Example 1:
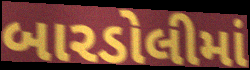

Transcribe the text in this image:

બારડોલીમાં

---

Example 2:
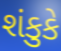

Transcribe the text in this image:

શંકુકે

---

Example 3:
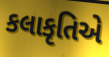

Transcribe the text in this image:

કલાકૃતિએ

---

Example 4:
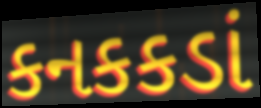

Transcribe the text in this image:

કનકકડાં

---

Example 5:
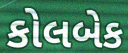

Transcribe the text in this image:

કોલબેક